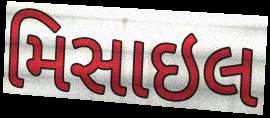
મિસાઇલ